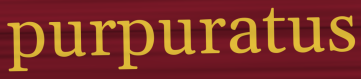
purpuratus